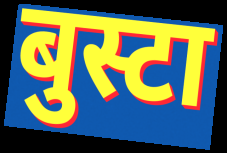
बुस्टा